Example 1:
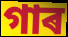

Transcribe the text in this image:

গাৰ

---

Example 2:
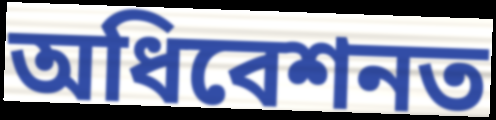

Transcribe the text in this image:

অধিবেশনত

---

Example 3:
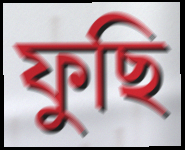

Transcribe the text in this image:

ফুছি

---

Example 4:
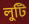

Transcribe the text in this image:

লুটি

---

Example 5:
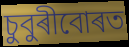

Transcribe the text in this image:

চুবুৰীবোৰত